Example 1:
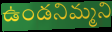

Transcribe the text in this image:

ఉండనిమ్మని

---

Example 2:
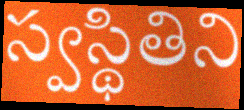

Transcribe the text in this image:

స్వస్థితిని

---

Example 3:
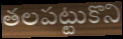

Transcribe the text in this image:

తలపట్టుకొని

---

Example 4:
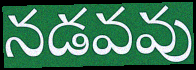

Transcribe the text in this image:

నడవవు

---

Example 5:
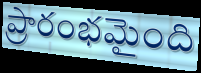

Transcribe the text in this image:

ప్రారంభమైంది